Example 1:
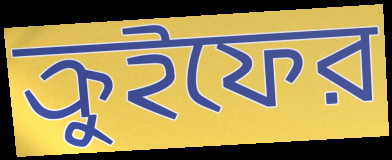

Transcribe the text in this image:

ক্রুইফের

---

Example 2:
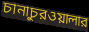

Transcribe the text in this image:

চানাচুরওয়ালার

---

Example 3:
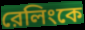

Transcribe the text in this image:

রেলিংকে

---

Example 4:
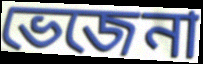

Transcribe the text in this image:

ভেজেনা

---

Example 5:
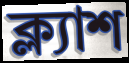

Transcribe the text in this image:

ক্ল্যাশ